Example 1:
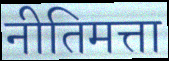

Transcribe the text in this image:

नीतिमत्ता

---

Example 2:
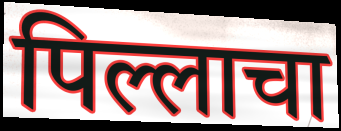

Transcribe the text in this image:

पिल्लाचा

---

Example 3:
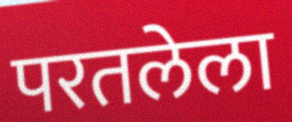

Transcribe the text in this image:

परतलेला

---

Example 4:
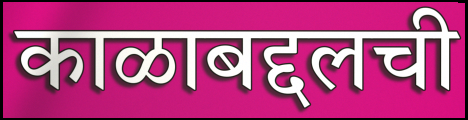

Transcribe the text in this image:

काळाबद्दलची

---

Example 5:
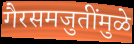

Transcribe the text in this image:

गैरसमजुतींमुळे